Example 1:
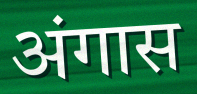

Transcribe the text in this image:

अंगास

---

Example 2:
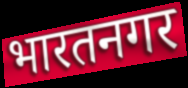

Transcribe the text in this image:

भारतनगर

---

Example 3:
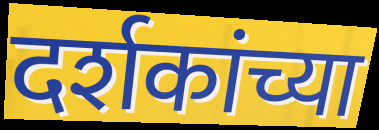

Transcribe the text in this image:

दर्शकांच्या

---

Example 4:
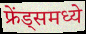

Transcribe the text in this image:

फ्रेंड्समध्ये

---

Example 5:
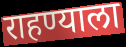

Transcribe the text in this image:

राहण्याला